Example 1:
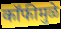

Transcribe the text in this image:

कॉफीमुळे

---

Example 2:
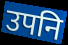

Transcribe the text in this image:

उपनि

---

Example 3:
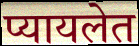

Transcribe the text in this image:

प्यायलेत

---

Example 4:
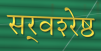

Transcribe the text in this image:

सर्वश्रेष्ठ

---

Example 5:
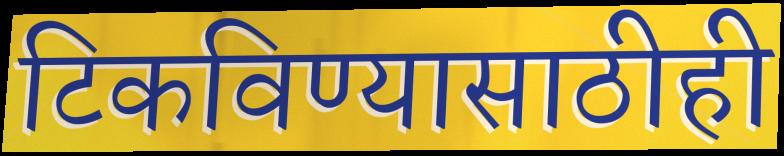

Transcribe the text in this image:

टिकविण्यासाठीही